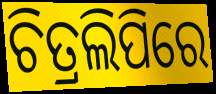
ଚିତ୍ରଲିପିରେ